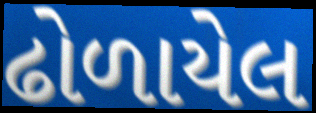
ઢોળાયેલ